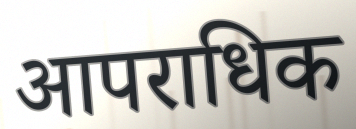
आपराधिक